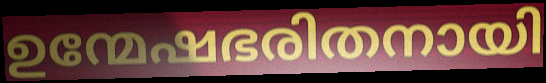
ഉന്മേഷഭരിതനായി